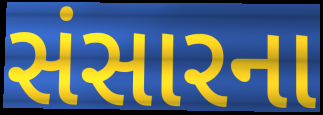
સંસારના